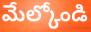
మేల్కోండి